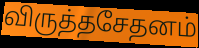
விருத்தசேதனம்